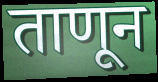
ताणून